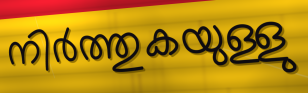
നിർത്തുകയുള്ളു